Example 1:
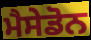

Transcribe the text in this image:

ਮੈਸੇਡੋਨ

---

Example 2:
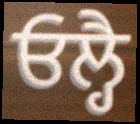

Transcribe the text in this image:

ਓਲ੍ਹ੍ਹੈ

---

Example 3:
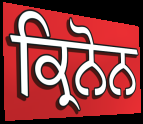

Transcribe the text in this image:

ਕ੍ਰਿਨੋਨ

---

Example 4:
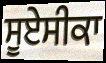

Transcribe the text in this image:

ਸੂਏਸੀਕਾ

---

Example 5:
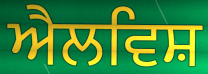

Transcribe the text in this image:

ਐਲਵਿਸ਼